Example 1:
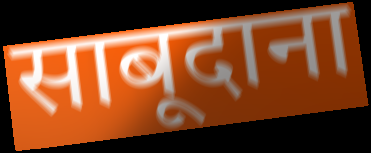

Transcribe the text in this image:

साबूदाना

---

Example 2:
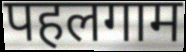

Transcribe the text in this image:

पहलगाम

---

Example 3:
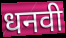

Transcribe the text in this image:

धनवी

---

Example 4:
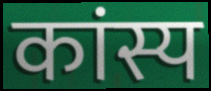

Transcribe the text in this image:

कांस्य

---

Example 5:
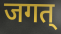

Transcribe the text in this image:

जगत्